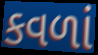
કવળાં